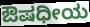
ಔಷಧೀಯ